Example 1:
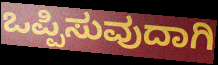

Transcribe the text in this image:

ಒಪ್ಪಿಸುವುದಾಗಿ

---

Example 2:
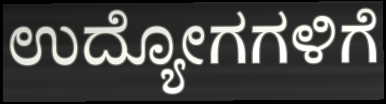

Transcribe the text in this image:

ಉದ್ಯೋಗಗಳಿಗೆ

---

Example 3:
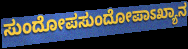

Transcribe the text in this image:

ಸುಂದೋಪಸುಂದೋಪಾಽಖ್ಯಾನ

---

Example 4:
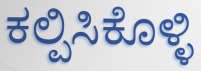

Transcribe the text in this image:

ಕಲ್ಪಿಸಿಕೊಳ್ಳಿ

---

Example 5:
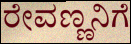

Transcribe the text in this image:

ರೇವಣ್ಣನಿಗೆ